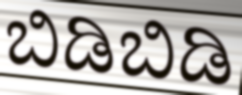
ಬಿಡಿಬಿಡಿ